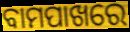
ବାମପାଖରେ